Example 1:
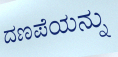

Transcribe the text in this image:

ದಣಪೆಯನ್ನು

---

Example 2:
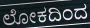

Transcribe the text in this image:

ಲೋಕದಿಂದ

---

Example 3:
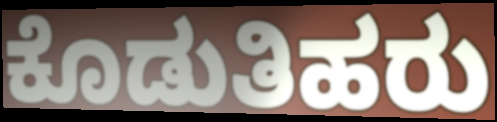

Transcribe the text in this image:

ಕೊಡುತಿಹರು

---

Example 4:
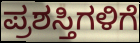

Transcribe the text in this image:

ಪ್ರಶಸ್ತಿಗಳಿಗೆ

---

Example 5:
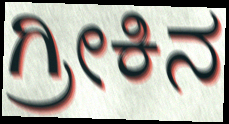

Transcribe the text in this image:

ಗ್ರೀಕಿನ